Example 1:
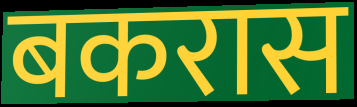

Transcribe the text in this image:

बकरास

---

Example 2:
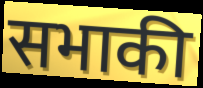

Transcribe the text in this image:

सभाकी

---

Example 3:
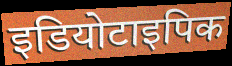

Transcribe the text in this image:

इडियोटाइपिक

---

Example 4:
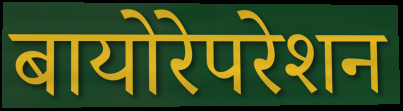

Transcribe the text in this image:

बायोरेपरेशन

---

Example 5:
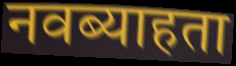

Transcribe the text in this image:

नवब्याहता